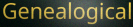
Genealogical